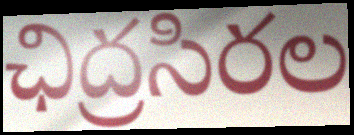
ఛిద్రసిరల